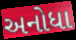
અનોધા